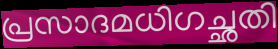
പ്രസാദമധിഗച്ഛതി